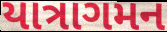
યાત્રાગમન